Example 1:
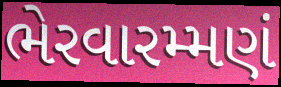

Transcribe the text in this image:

ભેરવારમ્મણં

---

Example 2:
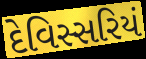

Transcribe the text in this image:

દેવિસ્સરિયં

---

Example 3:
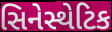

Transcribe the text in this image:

સિનેસ્થેટિક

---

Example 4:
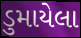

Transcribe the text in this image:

ડુમાયેલા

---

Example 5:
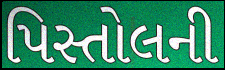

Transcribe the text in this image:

પિસ્તોલની